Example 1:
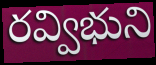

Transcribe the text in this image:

రవ్విభుని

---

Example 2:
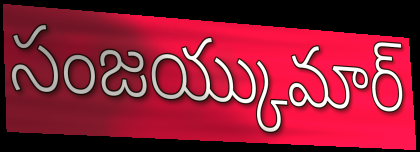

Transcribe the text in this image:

సంజయ్కుమార్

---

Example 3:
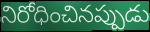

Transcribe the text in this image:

నిరోధించినప్పుడు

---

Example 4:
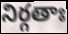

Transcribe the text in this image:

నిర్గతాః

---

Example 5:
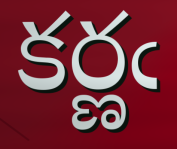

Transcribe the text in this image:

కర్ణఁ